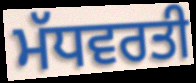
ਮੱਧਵਰਤੀ